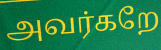
அவர்கறே